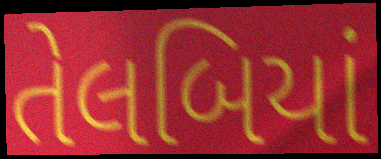
તેલબિયાં